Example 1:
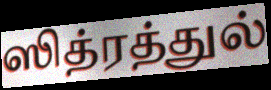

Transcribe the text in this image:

ஸித்ரத்துல்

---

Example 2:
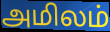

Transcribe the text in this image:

அமிலம்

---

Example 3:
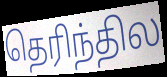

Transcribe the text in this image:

தெரிந்தில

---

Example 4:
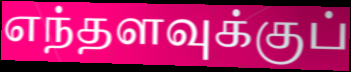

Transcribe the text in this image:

எந்தளவுக்குப்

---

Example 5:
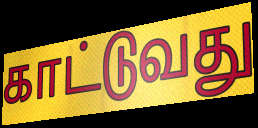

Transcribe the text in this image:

காட்டுவது